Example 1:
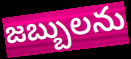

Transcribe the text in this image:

జబ్బులను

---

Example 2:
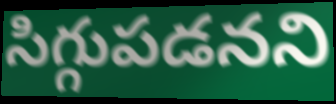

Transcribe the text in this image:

సిగ్గుపడనని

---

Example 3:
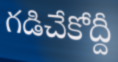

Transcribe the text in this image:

గడిచేకోద్దీ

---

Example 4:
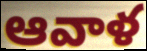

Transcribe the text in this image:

ఆవాళ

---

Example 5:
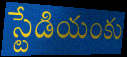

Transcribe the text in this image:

స్టేడియంకు